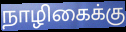
நாழிகைக்கு